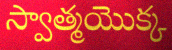
స్వాత్మయొక్క